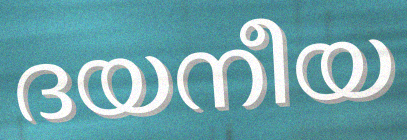
ദയനീയ